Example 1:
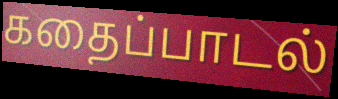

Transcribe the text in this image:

கதைப்பாடல்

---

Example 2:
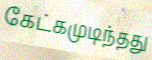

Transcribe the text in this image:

கேட்கமுடிந்தது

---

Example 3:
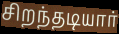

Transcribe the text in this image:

சிறந்தடியார்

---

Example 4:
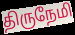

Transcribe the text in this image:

திருநேமி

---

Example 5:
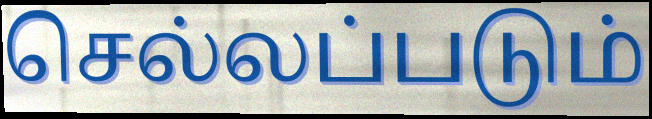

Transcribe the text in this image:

செல்லப்படும்